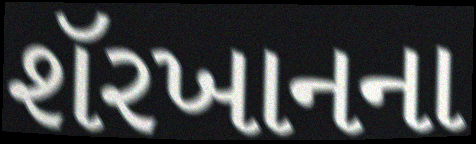
શૅરખાનના